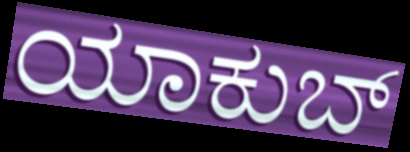
ಯಾಕುಬ್